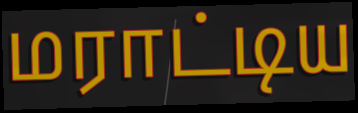
மராட்டிய